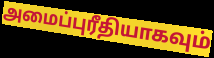
அமைப்புரீதியாகவும்